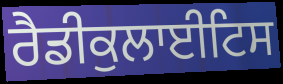
ਰੈਡੀਕੁਲਾਈਟਿਸ